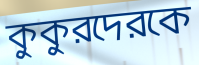
কুকুরদেরকে